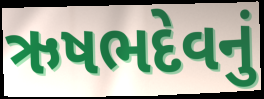
ઋષભદેવનું